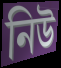
নিউ